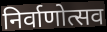
निर्वाणोत्सव